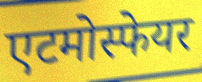
एटमोस्फेयर